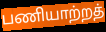
பணியாற்றத்